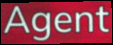
Agent